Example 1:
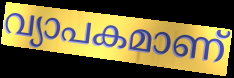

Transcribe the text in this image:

വ്യാപകമാണ്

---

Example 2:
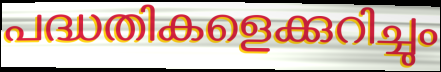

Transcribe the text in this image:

പദ്ധതികളെക്കുറിച്ചും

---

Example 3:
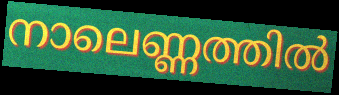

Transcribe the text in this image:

നാലെണ്ണത്തിൽ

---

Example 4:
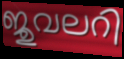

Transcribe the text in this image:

ജുവലറി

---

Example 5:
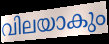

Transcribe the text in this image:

വിലയാകും